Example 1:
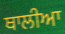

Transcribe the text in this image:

ਥਾਲੀਆ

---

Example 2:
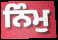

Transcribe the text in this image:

ਨਿੰਮੁ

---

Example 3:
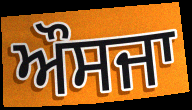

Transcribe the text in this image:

ਔਸਜਾ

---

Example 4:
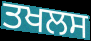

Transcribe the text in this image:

ਤਖਲਸ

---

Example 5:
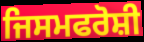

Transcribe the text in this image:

ਜਿਸਮਫਰੋਸ਼ੀ